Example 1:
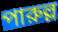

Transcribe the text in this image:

পারুল্ল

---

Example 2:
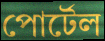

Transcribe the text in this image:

পোর্টেল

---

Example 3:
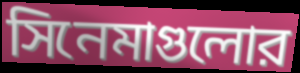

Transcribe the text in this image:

সিনেমাগুলোর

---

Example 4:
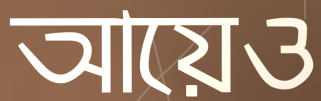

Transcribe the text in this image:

আয়েও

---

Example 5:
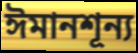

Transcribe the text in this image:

ঈমানশূন্য